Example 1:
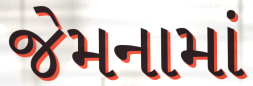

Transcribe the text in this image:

જેમનામાં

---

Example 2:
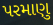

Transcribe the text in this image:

પરમાણુ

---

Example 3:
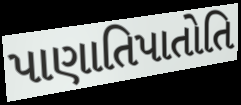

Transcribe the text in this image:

પાણાતિપાતોતિ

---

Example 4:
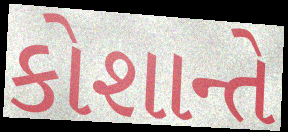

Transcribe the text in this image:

કોશાન્તે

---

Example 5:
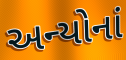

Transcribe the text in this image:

અન્યોનાં